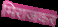
मिराजकर